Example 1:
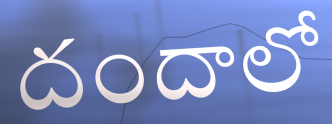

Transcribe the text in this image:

దందాలో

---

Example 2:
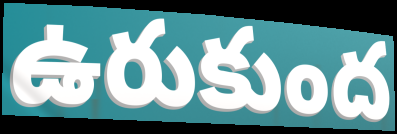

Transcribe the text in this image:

ఉరుకుంద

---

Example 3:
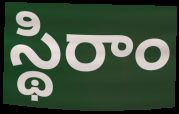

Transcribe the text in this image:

స్థిరాం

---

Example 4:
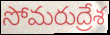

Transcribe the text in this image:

సోమరుద్రేశ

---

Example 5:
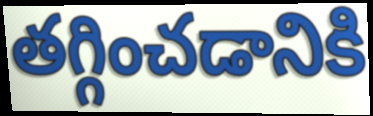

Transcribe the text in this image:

తగ్గించడానికి